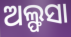
ଅଲ୍ଫସା